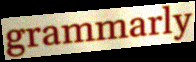
grammarly